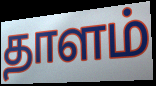
தாளம்